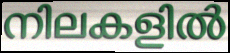
നിലകളിൽ